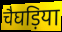
चैघड़िया